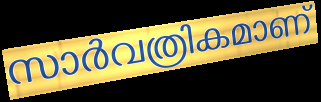
സാർവത്രികമാണ്